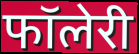
फॉलेरी